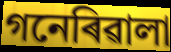
গনেৰিৱালা